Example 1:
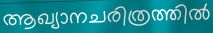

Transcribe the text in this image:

ആഖ്യാനചരിത്രത്തിൽ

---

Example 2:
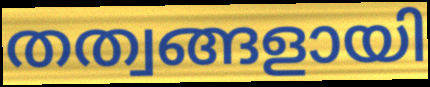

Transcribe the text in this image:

തത്വങ്ങളായി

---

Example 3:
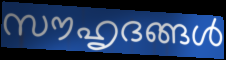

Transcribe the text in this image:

സൗഹൃദങ്ങൾ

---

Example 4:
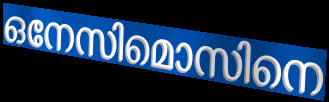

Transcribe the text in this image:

ഒനേസിമൊസിനെ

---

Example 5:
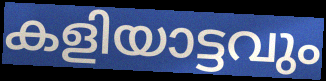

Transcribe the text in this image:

കളിയാട്ടവും